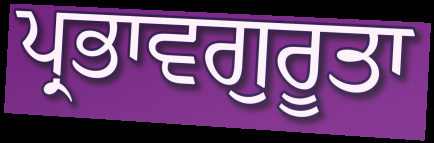
ਪ੍ਰਭਾਵਗੁਰੂਤਾ